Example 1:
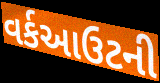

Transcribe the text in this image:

વર્કઆઉટની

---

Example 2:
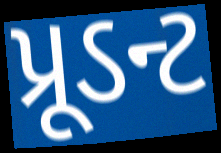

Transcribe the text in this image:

પ્રૂડન્ટ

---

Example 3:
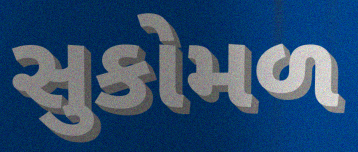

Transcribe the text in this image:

સુકોમળ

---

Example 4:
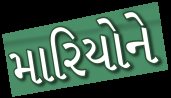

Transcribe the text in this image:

મારિયોને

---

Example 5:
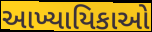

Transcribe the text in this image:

આખ્યાયિકાઓ